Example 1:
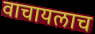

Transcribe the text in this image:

वाचायलाच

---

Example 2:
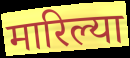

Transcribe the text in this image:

मारिल्या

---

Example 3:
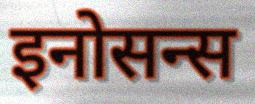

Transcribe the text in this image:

इनोसन्स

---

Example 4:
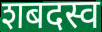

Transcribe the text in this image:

शबदस्व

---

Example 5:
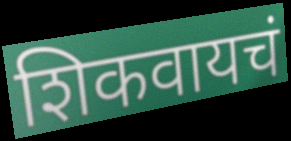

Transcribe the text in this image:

शिकवायचं